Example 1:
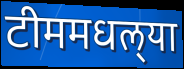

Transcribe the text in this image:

टीममधल्या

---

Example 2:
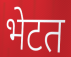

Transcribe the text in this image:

भेटत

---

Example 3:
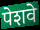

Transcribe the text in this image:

पेशवे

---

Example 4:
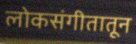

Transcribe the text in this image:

लोकसंगीतातून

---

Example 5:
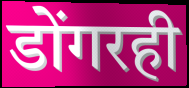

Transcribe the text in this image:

डोंगरही